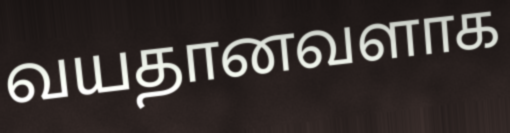
வயதானவளாக